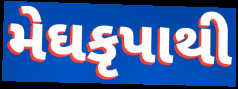
મેઘકૃપાથી